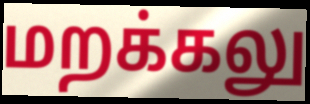
மறக்கலு